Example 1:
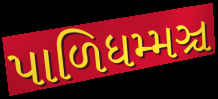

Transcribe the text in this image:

પાળિધમ્મઞ્ચ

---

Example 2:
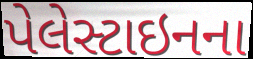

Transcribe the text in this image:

પેલેસ્ટાઇનના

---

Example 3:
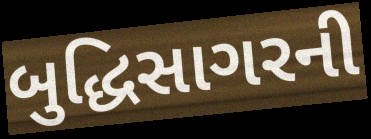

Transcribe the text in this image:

બુદ્ધિસાગરની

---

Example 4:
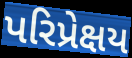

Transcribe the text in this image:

પરિપ્રેક્ષય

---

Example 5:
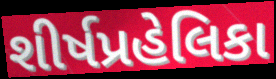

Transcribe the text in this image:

શીર્ષપ્રહેલિકા